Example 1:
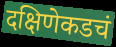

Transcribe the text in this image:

दक्षिणेकडचं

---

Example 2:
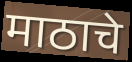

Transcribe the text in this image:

माठाचे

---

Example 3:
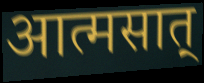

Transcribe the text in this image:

आत्मसात्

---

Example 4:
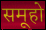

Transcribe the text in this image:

समूहो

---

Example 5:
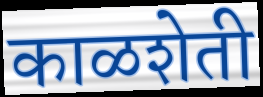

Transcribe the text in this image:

काळशेती